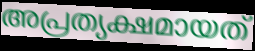
അപ്രത്യക്ഷമായത്